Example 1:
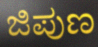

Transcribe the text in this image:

ಜಿಪುಣ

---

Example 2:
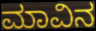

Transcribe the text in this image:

ಮಾವಿನ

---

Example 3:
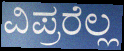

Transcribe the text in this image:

ವಿಪ್ರರೆಲ್ಲ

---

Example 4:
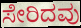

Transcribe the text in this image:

ಸೇರಿದವು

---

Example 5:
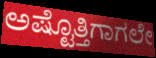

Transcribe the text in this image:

ಅಷ್ಟೊತ್ತಿಗಾಗಲೇ